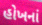
હોખનાં